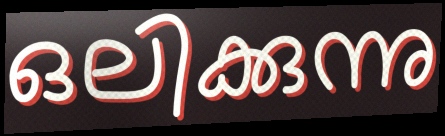
ഒലിക്കുന്നു